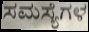
ಸಮಸ್ಯೆಗಳ